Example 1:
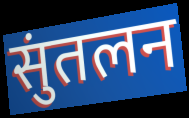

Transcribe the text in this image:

सुंतलन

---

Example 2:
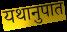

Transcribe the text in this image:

यथानुपात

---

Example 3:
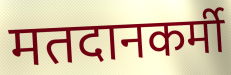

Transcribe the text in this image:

मतदानकर्मी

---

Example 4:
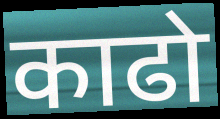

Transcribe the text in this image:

काढो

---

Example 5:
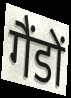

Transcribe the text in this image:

गैंडों